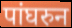
पांघरुन